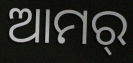
ଆମର୍